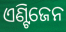
ଏଣ୍ଟିଜେନ